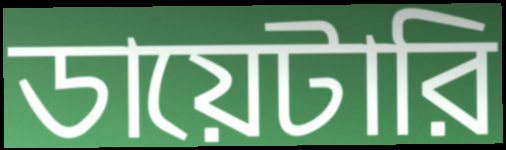
ডায়েটারি